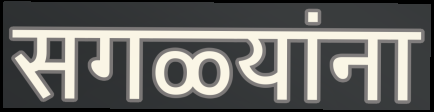
सगळ्यांना